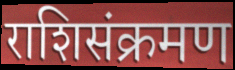
राशिसंक्रमण